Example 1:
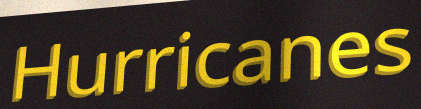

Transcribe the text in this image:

Hurricanes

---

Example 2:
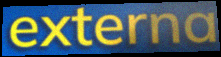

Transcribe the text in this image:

externa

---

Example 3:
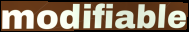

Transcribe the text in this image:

modifiable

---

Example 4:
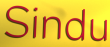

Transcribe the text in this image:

Sindu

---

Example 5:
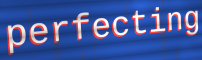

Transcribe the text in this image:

perfecting